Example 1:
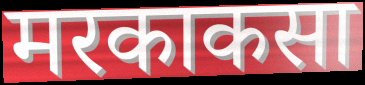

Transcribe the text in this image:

मरकाकसा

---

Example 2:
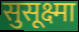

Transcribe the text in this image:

सुसूक्ष्मा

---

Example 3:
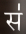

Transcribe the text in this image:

स॑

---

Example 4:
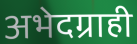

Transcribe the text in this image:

अभेदग्राही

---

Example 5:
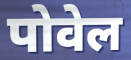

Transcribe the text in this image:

पोवेल